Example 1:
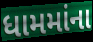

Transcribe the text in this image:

ધામમાંના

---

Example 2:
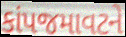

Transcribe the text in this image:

કાંપજમાવટને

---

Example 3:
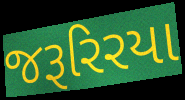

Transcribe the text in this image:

જરૂરિરયા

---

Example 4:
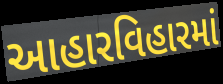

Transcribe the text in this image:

આહારવિહારમાં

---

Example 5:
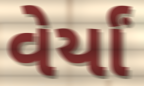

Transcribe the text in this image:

વેર્યાં